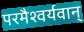
परमैश्वर्यवान्